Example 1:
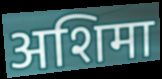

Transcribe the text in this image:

अशिमा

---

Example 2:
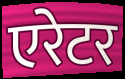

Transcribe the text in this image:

एरेटर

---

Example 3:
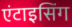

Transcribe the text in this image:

एंटाइसिंग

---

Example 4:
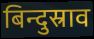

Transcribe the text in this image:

बिन्दुस्राव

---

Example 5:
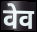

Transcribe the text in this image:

वेव